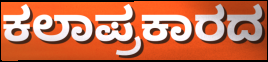
ಕಲಾಪ್ರಕಾರದ